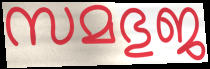
സമഭുജ